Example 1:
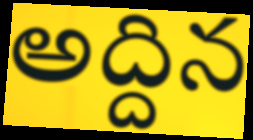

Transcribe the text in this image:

అద్దిన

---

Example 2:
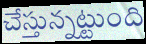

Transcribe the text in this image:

చేస్తున్నట్టుంది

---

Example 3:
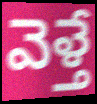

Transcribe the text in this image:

వెళ్తే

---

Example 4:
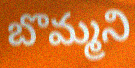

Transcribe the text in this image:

బొమ్మని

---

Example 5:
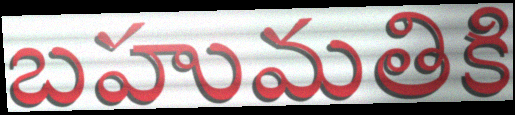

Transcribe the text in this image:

బహుమతికి